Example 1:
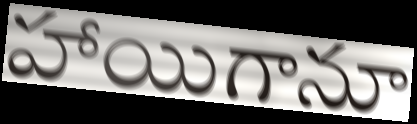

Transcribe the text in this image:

హాయిగానూ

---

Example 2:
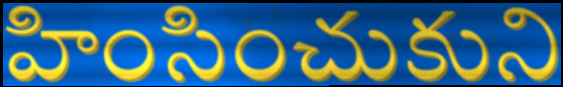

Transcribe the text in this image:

హింసించుకుని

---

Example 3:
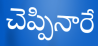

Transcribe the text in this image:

చెప్పినారే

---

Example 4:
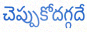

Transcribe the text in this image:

చెప్పుకోదగ్గదే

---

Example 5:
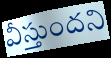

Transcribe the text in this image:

వీస్తుందని